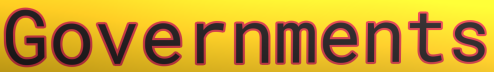
Governments